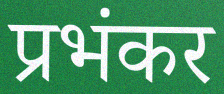
प्रभंकर